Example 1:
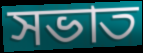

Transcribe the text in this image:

সভাত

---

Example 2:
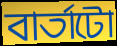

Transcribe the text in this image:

বাৰ্তাটো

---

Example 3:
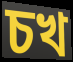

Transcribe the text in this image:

চখ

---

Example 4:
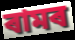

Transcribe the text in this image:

ৰামৰ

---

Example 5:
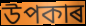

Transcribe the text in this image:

উপকাৰ